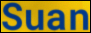
Suan